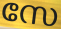
സേ